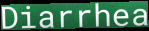
Diarrhea